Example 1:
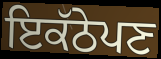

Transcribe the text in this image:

ਇਕੱਠੇਪਣ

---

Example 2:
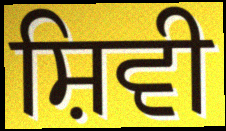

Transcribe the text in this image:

ਸ਼ਿਵੀ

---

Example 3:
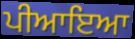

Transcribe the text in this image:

ਪੀਆਇਆ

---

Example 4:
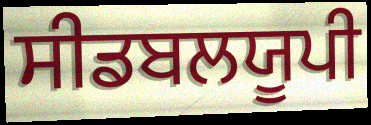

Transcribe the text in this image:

ਸੀਡਬਲਯੂਪੀ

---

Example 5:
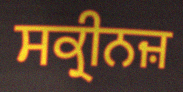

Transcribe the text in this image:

ਸਕ੍ਰੀਨਜ਼